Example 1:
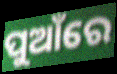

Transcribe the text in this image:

ପୁଆଁରେ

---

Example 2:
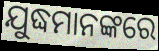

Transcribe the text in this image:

ଯୁଦ୍ଧମାନଙ୍କରେ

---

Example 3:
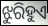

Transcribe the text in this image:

ଝୁରିହୁଏ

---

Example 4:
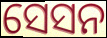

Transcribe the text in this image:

ସେସନ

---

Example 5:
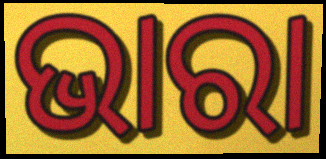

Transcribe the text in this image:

ଭାରା